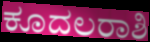
ಕೂದಲರಾಶಿ